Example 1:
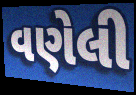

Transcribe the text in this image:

વણેલી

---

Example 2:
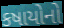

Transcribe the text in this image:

કષાયોનો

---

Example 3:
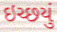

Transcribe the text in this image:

ઇચ્છયું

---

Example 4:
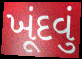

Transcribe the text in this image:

ખૂંદવું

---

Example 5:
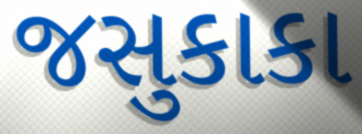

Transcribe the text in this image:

જસુકાકા